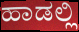
ಹಾಡಲ್ಲಿ